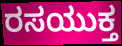
ರಸಯುಕ್ತ